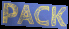
PACK